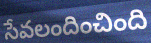
సేవలందించింది